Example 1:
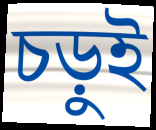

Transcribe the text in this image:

চড়ুই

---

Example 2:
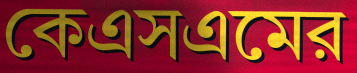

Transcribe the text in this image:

কেএসএমের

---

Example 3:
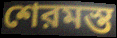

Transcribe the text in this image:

শেরমস্ত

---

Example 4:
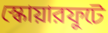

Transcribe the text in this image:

স্কোয়ারফুটে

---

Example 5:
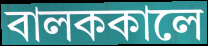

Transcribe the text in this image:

বালককালে